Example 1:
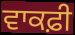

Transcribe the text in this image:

ਵਾਕਫ਼ੀ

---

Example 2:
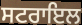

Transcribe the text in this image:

ਸਟਰਾਇਲ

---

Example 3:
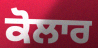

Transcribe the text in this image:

ਕੋਲਾਰ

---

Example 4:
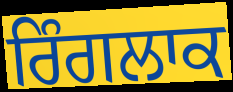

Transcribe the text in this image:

ਰਿੰਗਲਾਕ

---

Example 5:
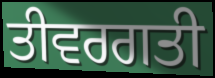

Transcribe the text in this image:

ਤੀਵਰਗਤੀ